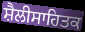
ਸ਼ੈਲੀਸਾਹਿਤਕ